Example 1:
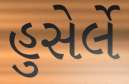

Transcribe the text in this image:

હુસેર્લે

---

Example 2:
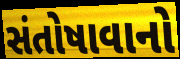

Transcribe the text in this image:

સંતોષાવાનો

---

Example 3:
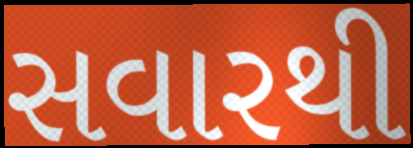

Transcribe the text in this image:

સવારથી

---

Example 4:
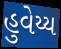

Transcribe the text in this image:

હુવેય્ય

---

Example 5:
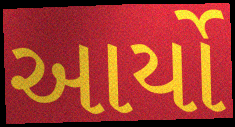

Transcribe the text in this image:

આર્યો